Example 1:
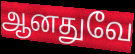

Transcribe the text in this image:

ஆனதுவே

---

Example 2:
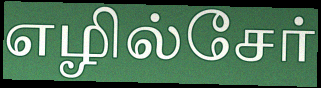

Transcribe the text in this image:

எழில்சேர்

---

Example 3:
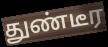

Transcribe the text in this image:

துண்டீர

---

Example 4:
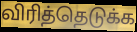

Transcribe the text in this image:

விரித்தெடுக்க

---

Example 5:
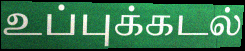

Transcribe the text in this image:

உப்புக்கடல்